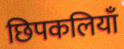
छिपकलियाँ